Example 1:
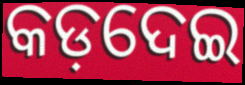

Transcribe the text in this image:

କଡ଼ଦେଇ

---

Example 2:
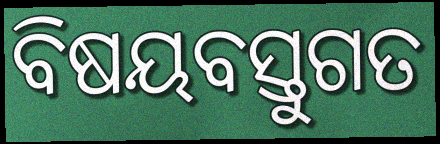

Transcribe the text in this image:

ବିଷୟବସ୍ତୁଗତ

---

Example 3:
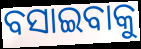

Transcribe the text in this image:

ବସାଇବାକୁ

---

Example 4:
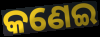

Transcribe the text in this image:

କଣେଇ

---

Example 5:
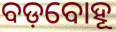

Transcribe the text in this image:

ବଡ଼ବୋହୂ